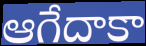
ఆగేదాకా